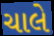
ચાલે